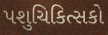
પશુચિકિત્સકો